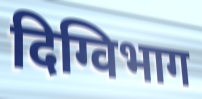
दिग्विभाग